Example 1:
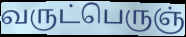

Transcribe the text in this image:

வருட்பெருஞ்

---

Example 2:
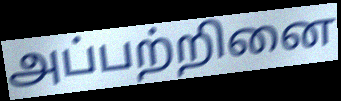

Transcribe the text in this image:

அப்பற்றினை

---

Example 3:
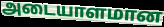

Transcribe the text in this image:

அடையாளமான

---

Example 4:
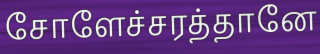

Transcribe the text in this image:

சோளேச்சரத்தானே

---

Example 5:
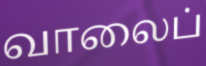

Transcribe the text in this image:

வாலைப்